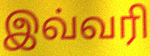
இவ்வரி